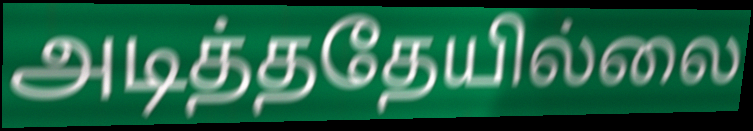
அடித்ததேயில்லை